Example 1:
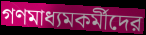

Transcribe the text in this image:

গণমাধ্যমকর্মীদের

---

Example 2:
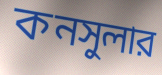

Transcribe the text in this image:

কনসুলার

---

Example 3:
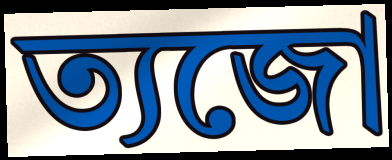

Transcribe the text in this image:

ত্যজো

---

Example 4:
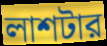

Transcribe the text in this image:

লাশটার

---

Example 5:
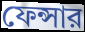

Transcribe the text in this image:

ফেন্সার